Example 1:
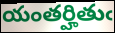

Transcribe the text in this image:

యంతర్హితుఁ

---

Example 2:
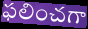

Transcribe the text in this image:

ఫలించగా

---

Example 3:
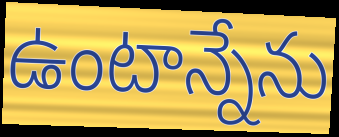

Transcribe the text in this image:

ఉంటాన్నేను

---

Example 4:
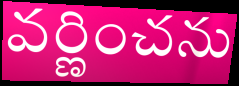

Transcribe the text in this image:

వర్ణించను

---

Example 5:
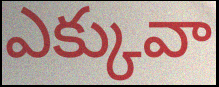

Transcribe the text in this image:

ఎక్కువా